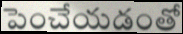
పెంచేయడంతో